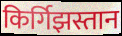
किर्गिझस्तान